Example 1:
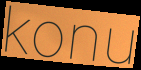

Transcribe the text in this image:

konu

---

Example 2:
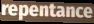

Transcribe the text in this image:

repentance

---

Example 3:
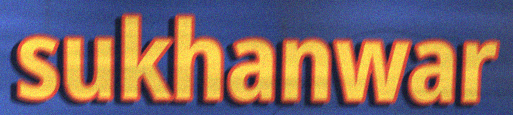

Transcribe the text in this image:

sukhanwar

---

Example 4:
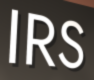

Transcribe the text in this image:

IRS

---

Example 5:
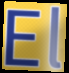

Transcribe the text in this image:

El